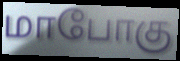
மாபோகு